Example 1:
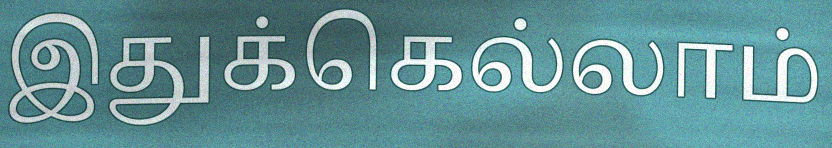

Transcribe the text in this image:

இதுக்கெல்லாம்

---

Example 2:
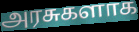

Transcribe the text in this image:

அரசுகளாக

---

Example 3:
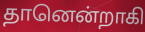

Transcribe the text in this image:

தானென்றாகி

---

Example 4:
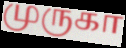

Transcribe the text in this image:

முருகா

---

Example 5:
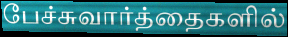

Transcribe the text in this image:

பேச்சுவார்த்தைகளில்